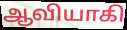
ஆவியாகி